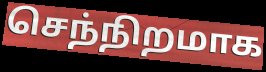
செந்நிறமாக